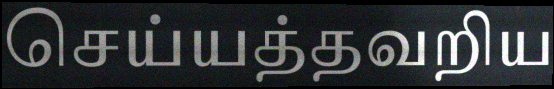
செய்யத்தவறிய